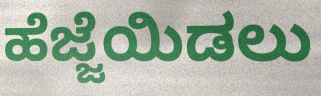
ಹೆಜ್ಜೆಯಿಡಲು